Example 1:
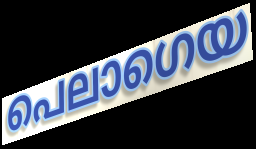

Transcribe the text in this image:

പെലാഗെയ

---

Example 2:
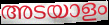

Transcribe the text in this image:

അടയാളം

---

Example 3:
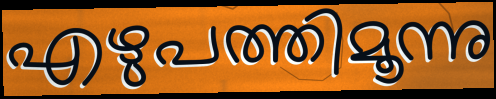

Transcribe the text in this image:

എഴുപത്തിമൂന്നു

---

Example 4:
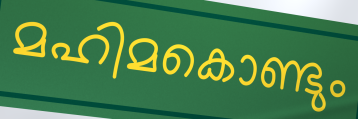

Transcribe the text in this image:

മഹിമകൊണ്ടും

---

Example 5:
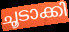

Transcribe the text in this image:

ചൂടാക്കി